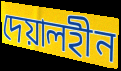
দেয়ালহীন